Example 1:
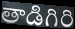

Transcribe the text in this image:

తాడిగిరి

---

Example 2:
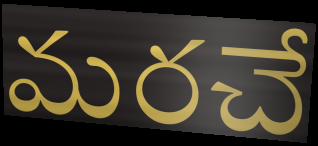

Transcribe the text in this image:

మరచే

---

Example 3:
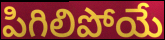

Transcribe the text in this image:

పిగిలిపోయే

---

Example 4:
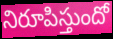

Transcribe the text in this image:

నిరూపిస్తుందో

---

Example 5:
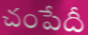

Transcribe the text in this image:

చంపేదీ